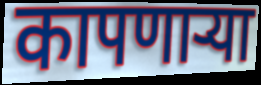
कापणाऱ्या